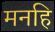
मनहि